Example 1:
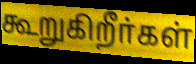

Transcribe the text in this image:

கூறுகிறீர்கள்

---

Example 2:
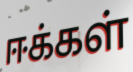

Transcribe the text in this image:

ஈக்கள்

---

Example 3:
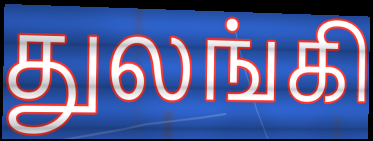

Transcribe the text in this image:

துலங்கி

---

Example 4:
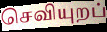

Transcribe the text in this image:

செவியுறப்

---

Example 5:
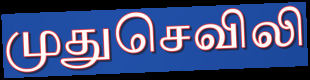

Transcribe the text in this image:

முதுசெவிலி